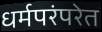
धर्मपरंपरेत